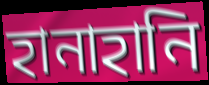
হানাহানি